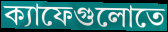
ক্যাফেগুলোতে